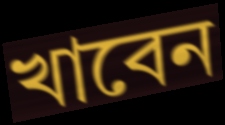
খাবেন